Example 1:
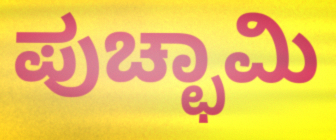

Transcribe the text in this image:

ಪುಚ್ಛಾಮಿ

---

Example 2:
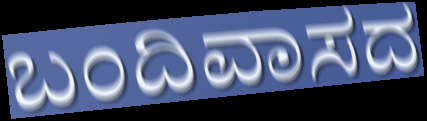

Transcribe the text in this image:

ಬಂದಿವಾಸದ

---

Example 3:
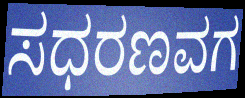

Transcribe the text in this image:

ಸಧರಣವಗ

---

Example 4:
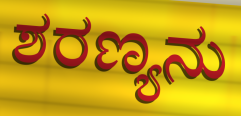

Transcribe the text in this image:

ಶರಣ್ಯನು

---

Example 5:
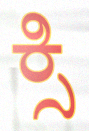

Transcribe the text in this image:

ಕ್ಸಿ